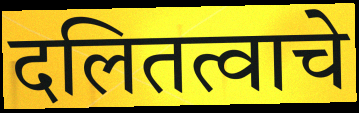
दलितत्वाचे